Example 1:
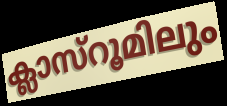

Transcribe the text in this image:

ക്ലാസ്റൂമിലും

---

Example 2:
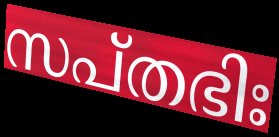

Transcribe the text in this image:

സപ്തഭിഃ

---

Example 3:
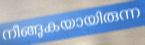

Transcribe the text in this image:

നീങ്ങുകയായിരുന്ന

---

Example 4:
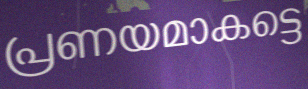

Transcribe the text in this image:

പ്രണയമാകട്ടെ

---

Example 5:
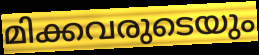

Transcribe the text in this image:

മിക്കവരുടെയും